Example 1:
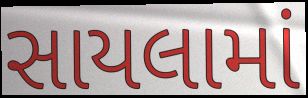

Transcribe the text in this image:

સાયલામાં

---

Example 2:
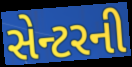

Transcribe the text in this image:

સેન્ટરની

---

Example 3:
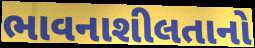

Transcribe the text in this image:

ભાવનાશીલતાનો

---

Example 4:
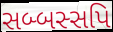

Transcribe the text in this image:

સબ્બસ્સપિ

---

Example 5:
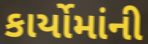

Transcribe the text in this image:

કાર્યોમાંની